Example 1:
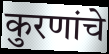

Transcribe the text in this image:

कुरणांचे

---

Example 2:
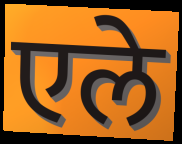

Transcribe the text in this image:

एले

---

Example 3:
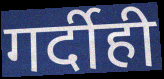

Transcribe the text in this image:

गर्दीही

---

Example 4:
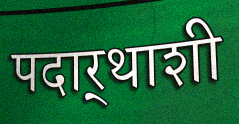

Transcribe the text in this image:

पदार्थाशी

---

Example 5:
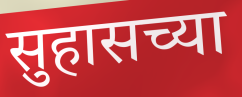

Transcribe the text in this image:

सुहासच्या